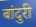
बांदुरी